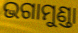
ଭଗାମୁଣ୍ଡା